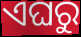
ଏଘରୁ